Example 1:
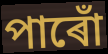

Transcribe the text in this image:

পাৰোঁ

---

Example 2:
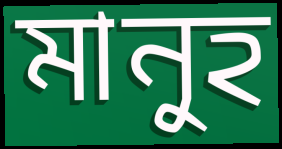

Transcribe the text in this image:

মানুহ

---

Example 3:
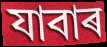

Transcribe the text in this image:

যাবাৰ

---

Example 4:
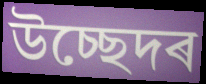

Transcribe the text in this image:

উচ্ছেদৰ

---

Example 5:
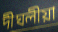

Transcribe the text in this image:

দীঘলীয়া